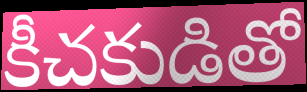
కీచకుడితో